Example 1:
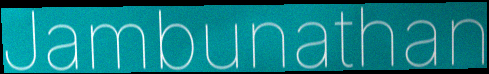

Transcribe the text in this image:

Jambunathan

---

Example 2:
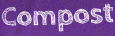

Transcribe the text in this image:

Compost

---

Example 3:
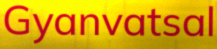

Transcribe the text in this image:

Gyanvatsal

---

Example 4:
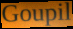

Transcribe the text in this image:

Goupil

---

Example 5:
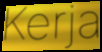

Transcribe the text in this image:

Kerja